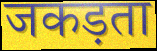
जकड़ता